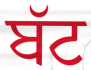
ਬੱਟ